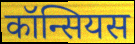
कॉन्सियस